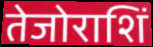
तेजोराशिं